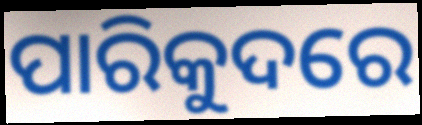
ପାରିକୁଦରେ